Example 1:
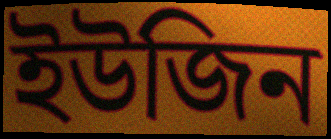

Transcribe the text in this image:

ইউজিন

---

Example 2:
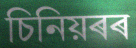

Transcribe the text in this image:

চিনিয়ৰৰ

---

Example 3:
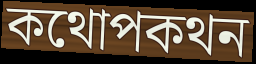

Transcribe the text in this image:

কথোপকথন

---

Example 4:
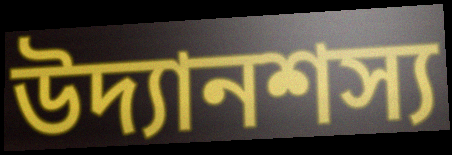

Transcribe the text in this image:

উদ্যানশস্য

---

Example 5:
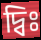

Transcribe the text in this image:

দ্বিঃ